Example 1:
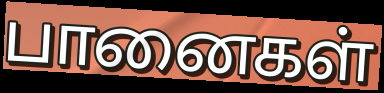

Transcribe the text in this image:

பானைகள்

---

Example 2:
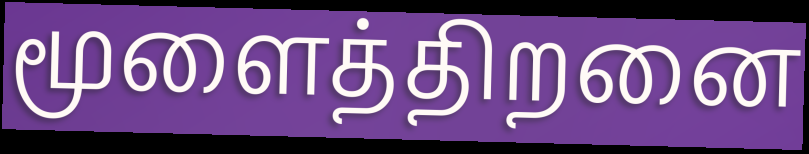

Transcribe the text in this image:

மூளைத்திறனை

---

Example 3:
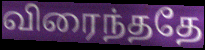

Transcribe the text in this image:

விரைந்ததே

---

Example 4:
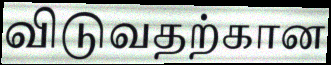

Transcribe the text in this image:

விடுவதற்கான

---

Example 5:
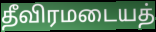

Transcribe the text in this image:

தீவிரமடையத்